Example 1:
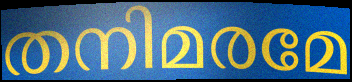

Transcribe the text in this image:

തനിമരമേ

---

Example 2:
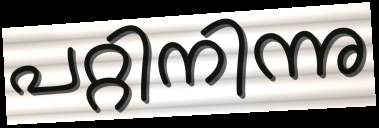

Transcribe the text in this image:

പറ്റിനിന്നു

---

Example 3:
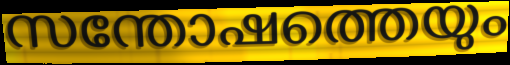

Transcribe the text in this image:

സന്തോഷത്തെയും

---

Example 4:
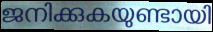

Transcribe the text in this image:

ജനിക്കുകയുണ്ടായി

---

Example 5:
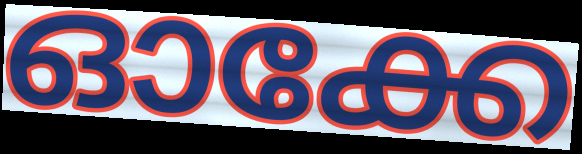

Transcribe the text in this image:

ഓക്കേ